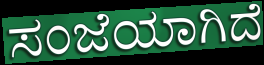
ಸಂಜೆಯಾಗಿದೆ